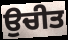
ਉਚੀਤ